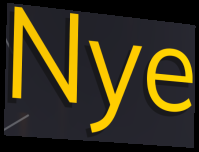
Nye